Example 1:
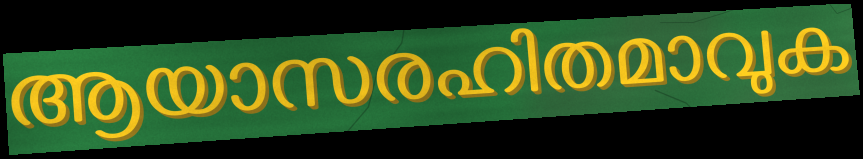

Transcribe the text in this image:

ആയാസരഹിതമാവുക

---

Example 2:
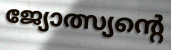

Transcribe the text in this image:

ജ്യോത്സ്യന്റെ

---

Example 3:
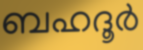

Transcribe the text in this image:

ബഹദൂർ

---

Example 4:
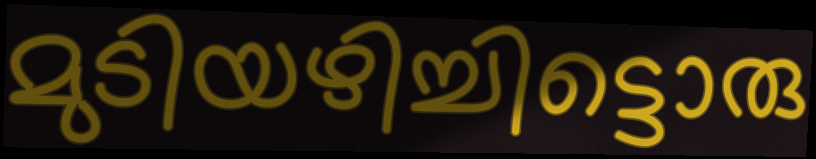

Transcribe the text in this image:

മുടിയഴിച്ചിട്ടൊരു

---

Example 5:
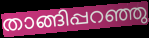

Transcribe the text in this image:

താങ്ങിപ്പറഞ്ഞു